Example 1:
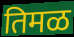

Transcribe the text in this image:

तिमळ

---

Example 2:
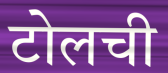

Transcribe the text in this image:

टोलची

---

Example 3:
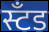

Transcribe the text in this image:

स्टॅंड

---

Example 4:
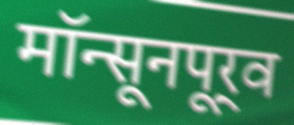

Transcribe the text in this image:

मॉन्सूनपूर्व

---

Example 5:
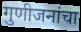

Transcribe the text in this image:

गुणीजनांचा